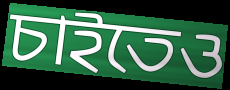
চাইতেও